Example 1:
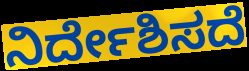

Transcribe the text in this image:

ನಿರ್ದೇಶಿಸದೆ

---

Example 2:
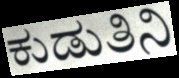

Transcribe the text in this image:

ಕುಡುತಿನಿ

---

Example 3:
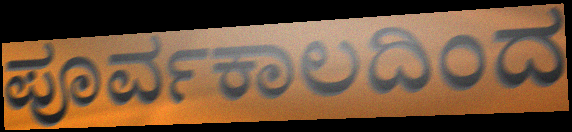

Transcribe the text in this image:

ಪೂರ್ವಕಾಲದಿಂದ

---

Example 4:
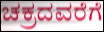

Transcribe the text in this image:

ಚಕ್ರದವರೆಗೆ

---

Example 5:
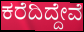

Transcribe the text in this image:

ಕರೆದಿದ್ದೇವೆ